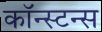
कॉन्स्टन्स